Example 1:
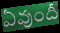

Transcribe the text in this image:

ఏవుందీ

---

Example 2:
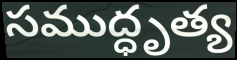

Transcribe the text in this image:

సముద్ధృత్య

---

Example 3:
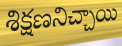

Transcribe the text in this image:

శిక్షణనిచ్చాయి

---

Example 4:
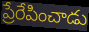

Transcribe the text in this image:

ప్రేరేపించాడు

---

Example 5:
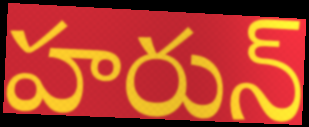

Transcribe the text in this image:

హరున్